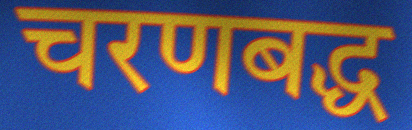
चरणबद्ध